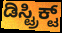
ಡಿಸ್ಟ್ರಿಕ್ಟ್